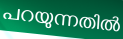
പറയുന്നതിൽ